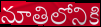
నూతిలోనికి